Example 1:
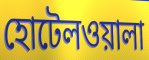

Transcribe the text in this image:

হোটেলওয়ালা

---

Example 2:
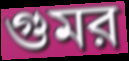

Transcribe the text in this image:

গুমর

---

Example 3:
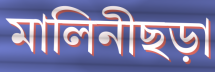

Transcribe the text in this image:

মালিনীছড়া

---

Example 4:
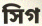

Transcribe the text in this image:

সিগ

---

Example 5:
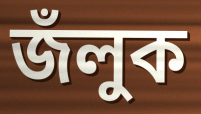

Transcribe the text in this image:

জঁলুক